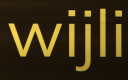
wijli